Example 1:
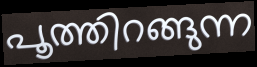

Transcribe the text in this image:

പൂത്തിറങ്ങുന്ന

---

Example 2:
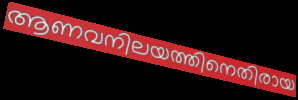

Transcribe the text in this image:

ആണവനിലയത്തിനെതിരായ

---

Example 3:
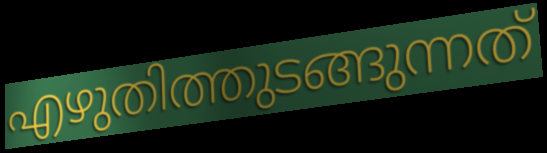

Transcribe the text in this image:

എഴുതിത്തുടങ്ങുന്നത്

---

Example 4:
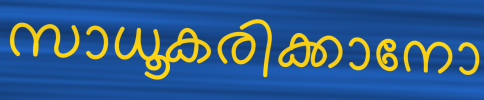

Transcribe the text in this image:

സാധൂകരിക്കാനോ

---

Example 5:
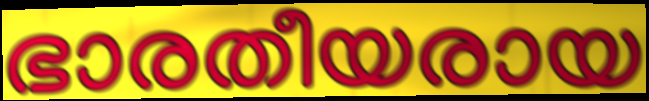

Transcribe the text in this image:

ഭാരതീയരായ